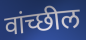
वांच्छील